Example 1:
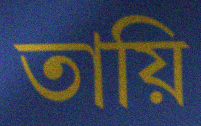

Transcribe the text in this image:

তায়ি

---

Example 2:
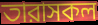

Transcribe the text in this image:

তারাসকল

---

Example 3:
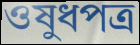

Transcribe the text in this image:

ওষুধপত্র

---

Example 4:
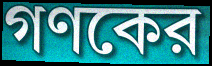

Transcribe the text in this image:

গণকের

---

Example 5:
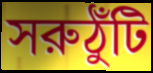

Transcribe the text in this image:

সরুঠুঁটি